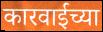
कारवाईच्या